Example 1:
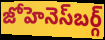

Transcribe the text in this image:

జోహెనెస్‍బర్గ్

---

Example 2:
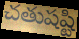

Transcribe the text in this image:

చతుషష్టి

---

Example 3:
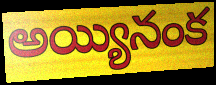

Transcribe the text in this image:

అయ్యినంక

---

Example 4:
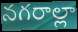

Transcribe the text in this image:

నగరాల్లా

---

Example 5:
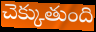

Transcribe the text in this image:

చెక్కుతుంది